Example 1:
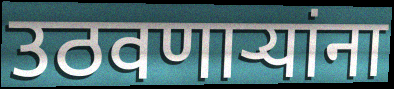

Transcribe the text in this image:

उठवणाऱ्यांना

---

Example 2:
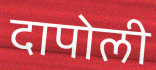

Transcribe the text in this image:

दापोली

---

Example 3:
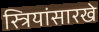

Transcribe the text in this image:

स्त्रियांसारखे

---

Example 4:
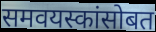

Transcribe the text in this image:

समवयस्कांसोबत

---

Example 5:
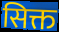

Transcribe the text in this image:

सिक्त